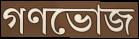
গণভোজ